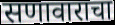
सणावाराचा